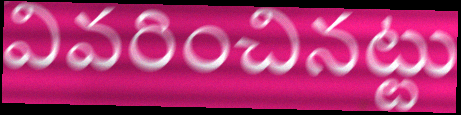
వివరించినట్టు